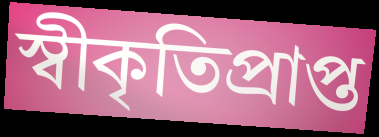
স্বীকৃতিপ্রাপ্ত